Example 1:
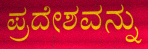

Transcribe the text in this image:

ಪ್ರದೇಶವನ್ನು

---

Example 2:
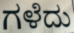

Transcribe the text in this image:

ಗಳೆದು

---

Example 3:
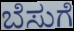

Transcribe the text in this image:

ಬೆಸುಗೆ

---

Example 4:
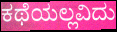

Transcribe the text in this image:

ಕಥೆಯಲ್ಲವಿದು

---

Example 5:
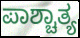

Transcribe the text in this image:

ಪಾಶ್ಚಾತ್ಯ